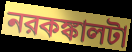
নরকঙ্কালটা